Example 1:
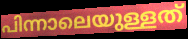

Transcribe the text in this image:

പിന്നാലെയുള്ളത്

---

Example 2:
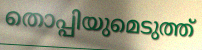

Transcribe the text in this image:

തൊപ്പിയുമെടുത്ത്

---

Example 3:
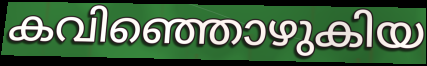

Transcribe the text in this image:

കവിഞ്ഞൊഴുകിയ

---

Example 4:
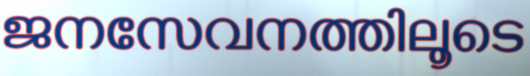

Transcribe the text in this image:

ജനസേവനത്തിലൂടെ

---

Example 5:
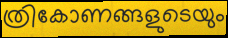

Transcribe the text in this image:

ത്രികോണങ്ങളുടെയും